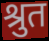
श्रुत